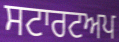
ਸਟਾਰਟਅਪ